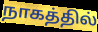
நாகத்தில்